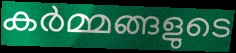
കർമ്മങ്ങളുടെ